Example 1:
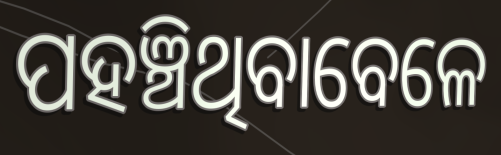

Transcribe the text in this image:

ପହଞ୍ଚିଥିବାବେଳେ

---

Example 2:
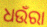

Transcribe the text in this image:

ଧଉଁରା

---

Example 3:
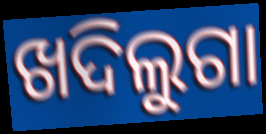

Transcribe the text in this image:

ଖଦିଲୁଗା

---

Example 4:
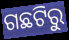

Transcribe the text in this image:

ଗଛଟିରୁ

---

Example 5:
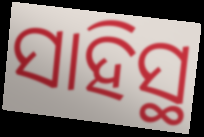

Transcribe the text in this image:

ସାହିସ୍ଥ